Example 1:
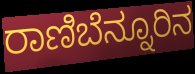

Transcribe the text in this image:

ರಾಣಿಬೆನ್ನೂರಿನ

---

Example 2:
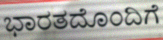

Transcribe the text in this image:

ಭಾರತದೊಂದಿಗೆ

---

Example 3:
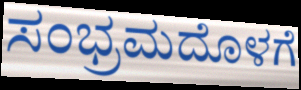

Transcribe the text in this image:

ಸಂಭ್ರಮದೊಳಗೆ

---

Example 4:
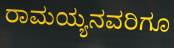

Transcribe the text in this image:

ರಾಮಯ್ಯನವರಿಗೂ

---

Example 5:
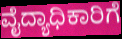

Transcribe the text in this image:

ವೈದ್ಯಾಧಿಕಾರಿಗೆ